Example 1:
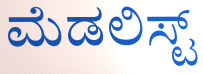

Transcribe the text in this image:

ಮೆಡಲಿಸ್ಟ್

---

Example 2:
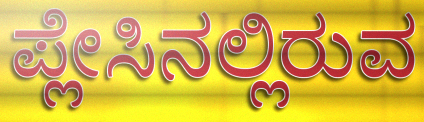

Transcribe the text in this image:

ಪ್ಲೇಸಿನಲ್ಲಿರುವ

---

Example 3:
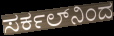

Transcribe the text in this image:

ಸರ್ಕಲ್‌ನಿಂದ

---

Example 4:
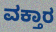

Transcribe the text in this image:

ವಕ್ತಾರ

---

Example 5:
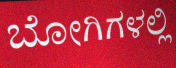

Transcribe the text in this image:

ಬೋಗಿಗಳಲ್ಲಿ